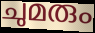
ചുമരും